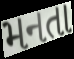
મનતા